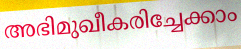
അഭിമുഖീകരിച്ചേക്കാം